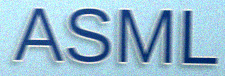
ASML